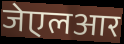
जेएलआर